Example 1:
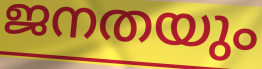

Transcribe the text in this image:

ജനതയും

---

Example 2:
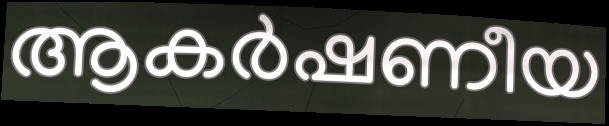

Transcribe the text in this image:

ആകർഷണീയ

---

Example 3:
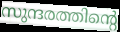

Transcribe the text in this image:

സുന്ദരത്തിന്റെ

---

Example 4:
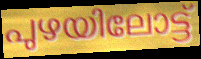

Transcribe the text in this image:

പുഴയിലോട്ട്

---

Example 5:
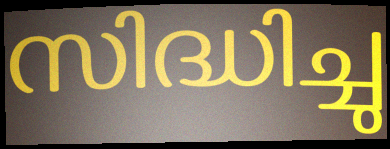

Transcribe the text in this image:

സിദ്ധിച്ചു